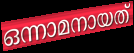
ഒന്നാമനായത്